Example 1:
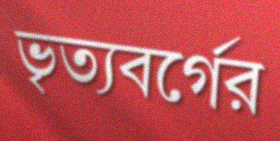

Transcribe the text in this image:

ভৃত্যবর্গের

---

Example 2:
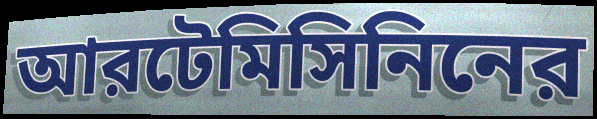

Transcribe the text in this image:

আরটেমিসিনিনের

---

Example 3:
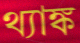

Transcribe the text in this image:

থ্যাঙ্ক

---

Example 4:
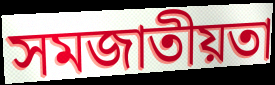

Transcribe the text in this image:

সমজাতীয়তা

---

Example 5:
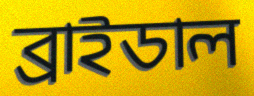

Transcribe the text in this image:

ব্রাইডাল